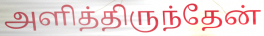
அளித்திருந்தேன்